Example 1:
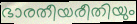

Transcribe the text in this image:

ഭാരതീയരീതിയും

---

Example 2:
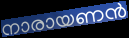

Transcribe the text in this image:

നാരായണൻ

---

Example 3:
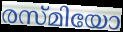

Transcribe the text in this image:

രസ്മിയോ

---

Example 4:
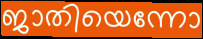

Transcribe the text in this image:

ജാതിയെന്നോ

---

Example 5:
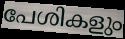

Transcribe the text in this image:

പേശികളും